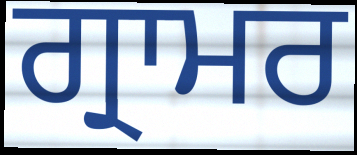
ਗ੍ਰਾਮਰ